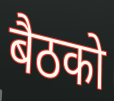
बैठको